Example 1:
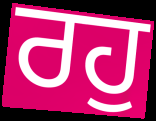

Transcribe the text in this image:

ਰਹੁ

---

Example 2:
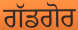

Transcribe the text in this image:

ਗੱਡਗੋਰ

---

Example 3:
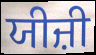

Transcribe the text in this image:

ਯੀਜ਼ੀ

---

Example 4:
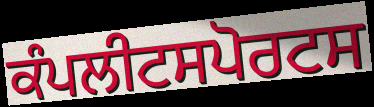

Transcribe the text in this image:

ਕੰਪਲੀਟਸਪੋਰਟਸ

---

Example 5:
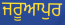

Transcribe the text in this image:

ਜਰੂਆਪੁਰ